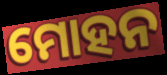
ମୋହନ